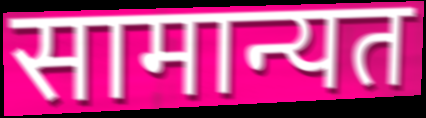
सामान्यत